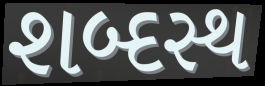
શબ્દસ્થ